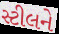
સ્ટીલને